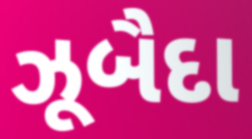
ઝૂબૈદા